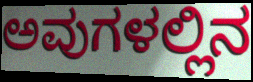
ಅವುಗಳಲ್ಲಿನ